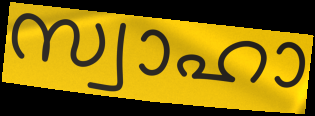
സ്വാഹാ